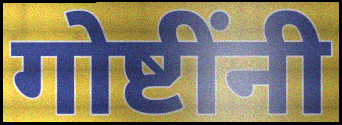
गोष्टींनी